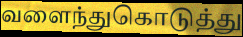
வளைந்துகொடுத்து